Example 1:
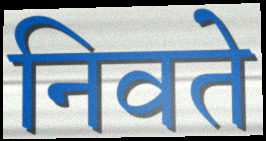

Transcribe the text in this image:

निवते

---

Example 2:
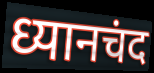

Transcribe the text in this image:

ध्यानचंद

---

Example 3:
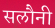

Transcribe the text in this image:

सलौनी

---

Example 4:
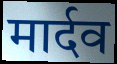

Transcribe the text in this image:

मार्दव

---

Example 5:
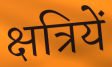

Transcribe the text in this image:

क्षत्रियें